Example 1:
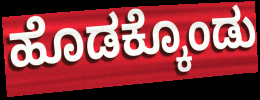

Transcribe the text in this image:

ಹೊಡಕ್ಕೊಂಡು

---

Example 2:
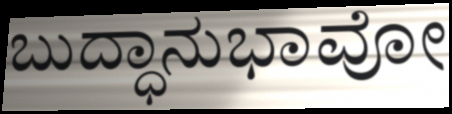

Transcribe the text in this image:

ಬುದ್ಧಾನುಭಾವೋ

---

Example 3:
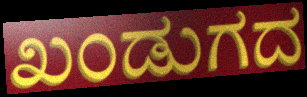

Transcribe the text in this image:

ಖಂಡುಗದ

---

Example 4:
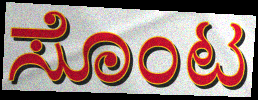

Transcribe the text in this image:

ಸೊಂಟ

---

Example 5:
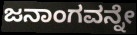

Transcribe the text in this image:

ಜನಾಂಗವನ್ನೇ